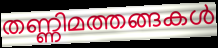
തണ്ണിമത്തങ്ങകൾ